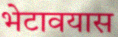
भेटावयास